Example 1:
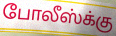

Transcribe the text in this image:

போலீஸ்க்கு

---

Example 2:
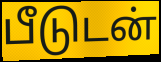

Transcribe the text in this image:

பீடுடன்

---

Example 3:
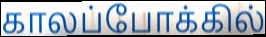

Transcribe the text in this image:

காலப்போக்கில்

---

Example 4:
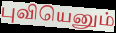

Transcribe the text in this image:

புவியெனும்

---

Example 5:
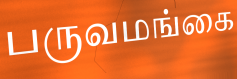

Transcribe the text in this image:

பருவமங்கை